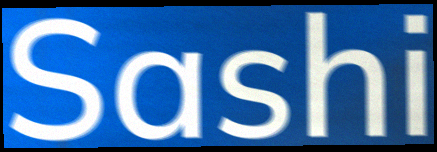
Sashi